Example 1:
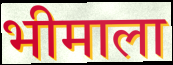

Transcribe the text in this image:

भीमाला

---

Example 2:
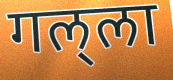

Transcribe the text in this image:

गल्ला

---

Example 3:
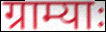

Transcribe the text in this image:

ग्राम्याः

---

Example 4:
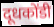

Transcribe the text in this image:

दूधकोंडी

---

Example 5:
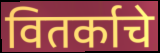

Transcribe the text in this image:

वितर्काचे